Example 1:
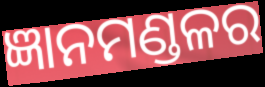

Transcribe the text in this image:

ଜ୍ଞାନମଣ୍ଡଳର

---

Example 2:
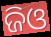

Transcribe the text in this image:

ଜିଓ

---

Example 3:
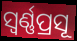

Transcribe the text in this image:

ସ୍ଵର୍ଣ୍ଣପ୍ରସୂ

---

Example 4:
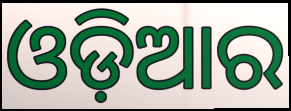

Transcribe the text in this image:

ଓଡ଼ିଆର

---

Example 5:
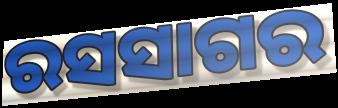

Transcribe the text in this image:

ରସସାଗର